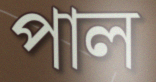
পাল